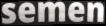
semen